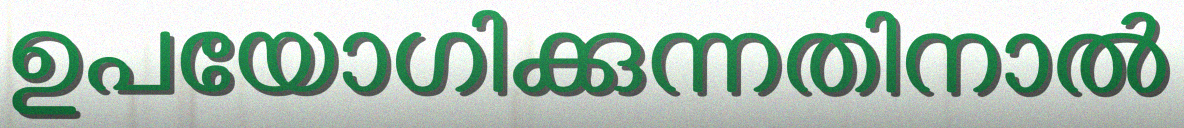
ഉപയോഗിക്കുന്നതിനാൽ